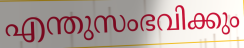
എന്തുസംഭവിക്കും